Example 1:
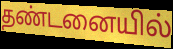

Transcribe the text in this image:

தண்டனையில்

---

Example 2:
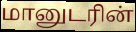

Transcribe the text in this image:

மானுடரின்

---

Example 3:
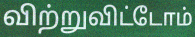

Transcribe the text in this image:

விற்றுவிட்டோம்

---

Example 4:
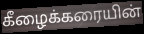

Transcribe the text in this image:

கீழைக்கரையின்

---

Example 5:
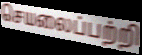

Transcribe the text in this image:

செயலைப்பற்றி